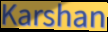
Karshan